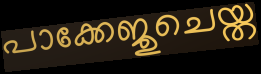
പാക്കേജുചെയ്ത